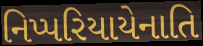
નિપ્પરિયાયેનાતિ